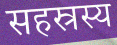
सहस्रस्य